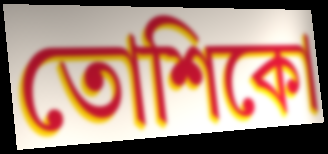
তোশিকো